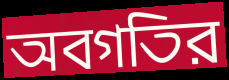
অবগতির